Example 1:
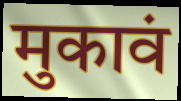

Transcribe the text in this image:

मुकावं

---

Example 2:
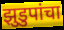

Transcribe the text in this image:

झुडुपांचा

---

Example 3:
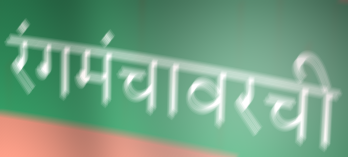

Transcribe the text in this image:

रंगमंचावरची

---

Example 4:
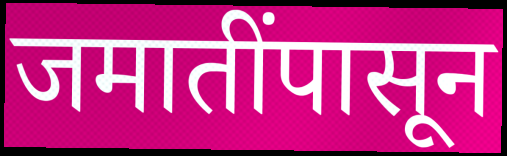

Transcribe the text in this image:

जमातींपासून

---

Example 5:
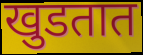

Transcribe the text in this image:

खुडतात